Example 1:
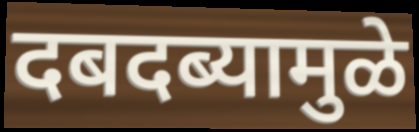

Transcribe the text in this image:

दबदब्यामुळे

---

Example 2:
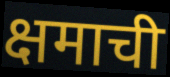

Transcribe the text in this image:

क्षमाची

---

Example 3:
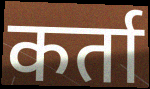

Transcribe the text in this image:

कर्ता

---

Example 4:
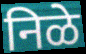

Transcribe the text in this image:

निळे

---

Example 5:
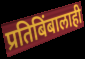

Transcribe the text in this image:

प्रतिबिंबालाही